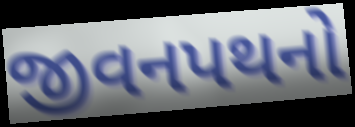
જીવનપથનો